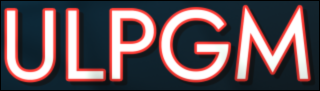
ULPGM